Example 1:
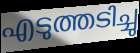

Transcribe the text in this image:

എടുത്തടിച്ചു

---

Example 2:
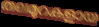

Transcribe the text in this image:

തലമുറകളായ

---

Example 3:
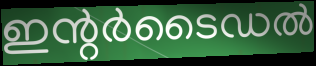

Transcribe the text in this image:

ഇന്റർടൈഡൽ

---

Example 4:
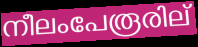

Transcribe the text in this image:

നീലംപേരൂരില്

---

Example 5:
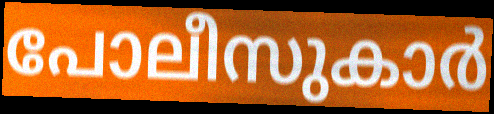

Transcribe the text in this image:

പോലീസുകാർ